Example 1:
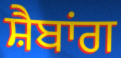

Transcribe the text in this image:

ਸ਼ੈਬਾਂਗ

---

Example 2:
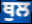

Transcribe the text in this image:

ਥੁਲ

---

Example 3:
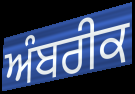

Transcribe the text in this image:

ਅੰਬਰੀਕ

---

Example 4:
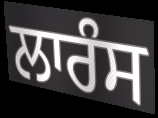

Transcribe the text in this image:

ਲਾਰੰਸ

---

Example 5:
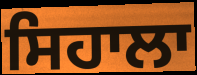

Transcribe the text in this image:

ਸਿਹਾਲਾ